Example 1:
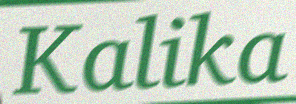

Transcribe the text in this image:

Kalika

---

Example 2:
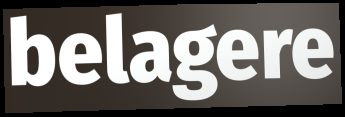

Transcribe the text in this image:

belagere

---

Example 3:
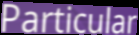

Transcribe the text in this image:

Particular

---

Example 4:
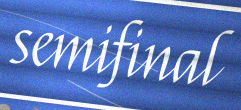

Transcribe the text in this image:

semifinal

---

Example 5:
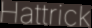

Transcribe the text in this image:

Hattrick